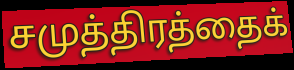
சமுத்திரத்தைக்